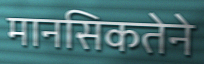
मानसिकतेने